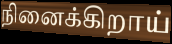
நினைக்கிறாய்